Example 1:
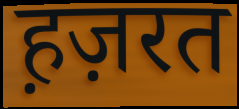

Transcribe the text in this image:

ह़ज़रत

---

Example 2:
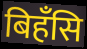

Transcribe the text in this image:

बिहँसि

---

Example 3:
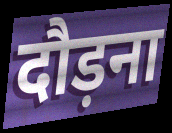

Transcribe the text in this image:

दौड़ना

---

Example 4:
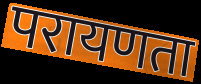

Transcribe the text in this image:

परायणता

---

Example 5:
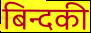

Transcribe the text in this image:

बिन्दकी